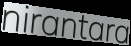
nirantara